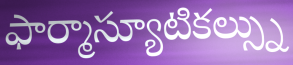
ఫార్మాస్యూటికల్స్ను